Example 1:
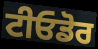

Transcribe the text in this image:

ਟੀਓਡੋਰ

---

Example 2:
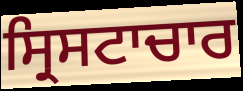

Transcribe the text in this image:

ਸ੍ਰਿਸਟਾਚਾਰ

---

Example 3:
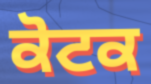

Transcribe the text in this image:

ਕੋਟਕ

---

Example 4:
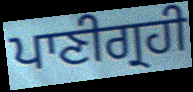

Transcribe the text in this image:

ਪਾਣੀਗ੍ਰਹੀ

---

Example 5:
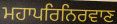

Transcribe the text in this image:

ਮਹਾਪਰਿਨਿਰਵਾਣ